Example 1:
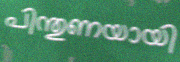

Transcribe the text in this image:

പിന്തുണയായി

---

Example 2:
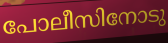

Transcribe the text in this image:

പോലീസിനോടു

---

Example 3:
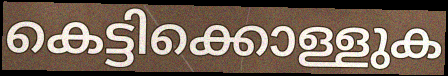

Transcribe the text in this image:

കെട്ടിക്കൊള്ളുക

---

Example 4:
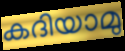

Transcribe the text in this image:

കദിയാമു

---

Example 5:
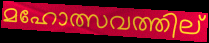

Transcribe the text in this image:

മഹോത്സവത്തില്